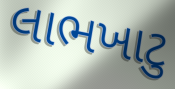
લાભખાટુ